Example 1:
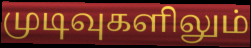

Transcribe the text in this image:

முடிவுகளிலும்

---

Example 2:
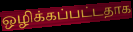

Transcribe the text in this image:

ஒழிக்கப்பட்டதாக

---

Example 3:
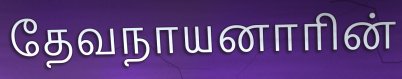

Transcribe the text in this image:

தேவநாயனாரின்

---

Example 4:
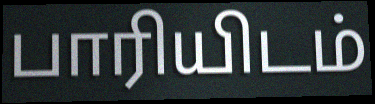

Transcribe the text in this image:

பாரியிடம்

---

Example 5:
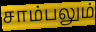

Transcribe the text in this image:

சாம்பலும்